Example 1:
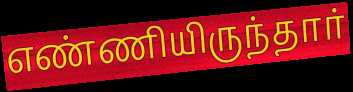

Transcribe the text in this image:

எண்ணியிருந்தார்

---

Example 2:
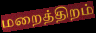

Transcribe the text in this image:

மறைத்திறம்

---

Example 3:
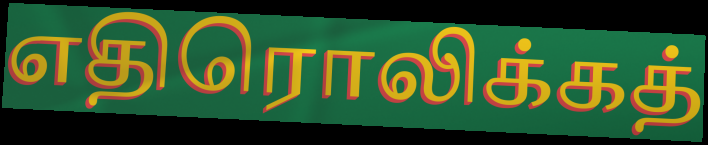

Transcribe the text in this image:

எதிரொலிக்கத்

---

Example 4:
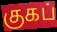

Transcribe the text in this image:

குகப்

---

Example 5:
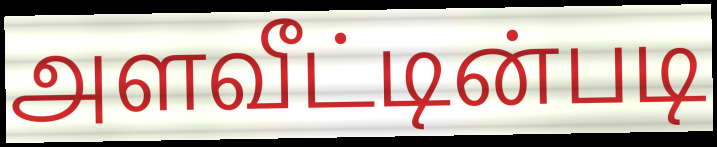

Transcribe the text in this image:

அளவீட்டின்படி